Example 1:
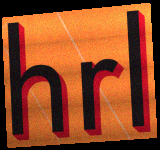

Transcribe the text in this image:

hrl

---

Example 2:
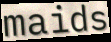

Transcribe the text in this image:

maids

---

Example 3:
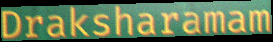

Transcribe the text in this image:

Draksharamam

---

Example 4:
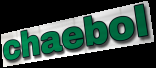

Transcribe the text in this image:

chaebol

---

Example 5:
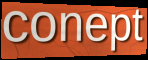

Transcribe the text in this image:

conept